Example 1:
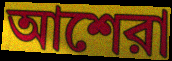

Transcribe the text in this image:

আশেরা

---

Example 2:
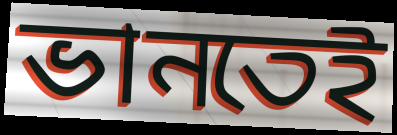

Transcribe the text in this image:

ভানতেই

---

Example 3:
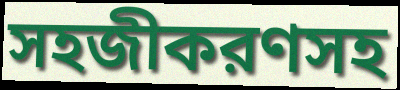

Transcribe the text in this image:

সহজীকরণসহ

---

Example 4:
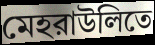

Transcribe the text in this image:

মেহরাউলিতে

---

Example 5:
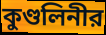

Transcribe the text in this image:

কুণ্ডলিনীর